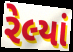
રેલ્યાં